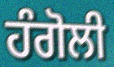
ਹੰਗੋਲੀ